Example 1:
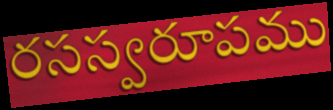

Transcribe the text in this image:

రసస్వరూపము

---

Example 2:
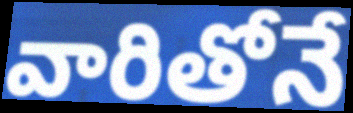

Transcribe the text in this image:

వారితోనే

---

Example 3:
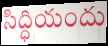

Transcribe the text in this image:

సిద్ధియందు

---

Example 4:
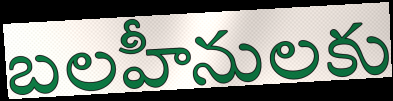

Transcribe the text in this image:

బలహీనులకు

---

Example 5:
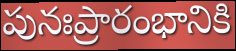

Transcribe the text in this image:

పునఃప్రారంభానికి